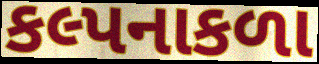
કલ્પનાકળા